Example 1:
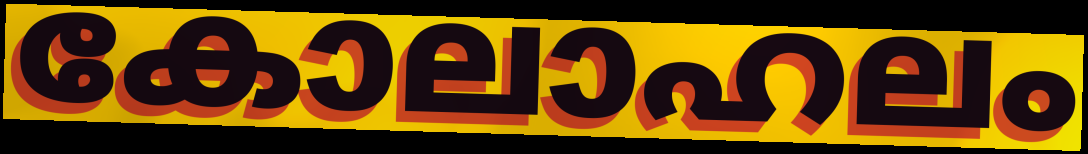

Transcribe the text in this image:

കോലാഹലം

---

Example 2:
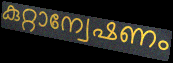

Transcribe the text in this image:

കുറ്റാന്വേഷണം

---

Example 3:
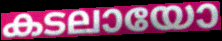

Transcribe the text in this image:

കടലായോ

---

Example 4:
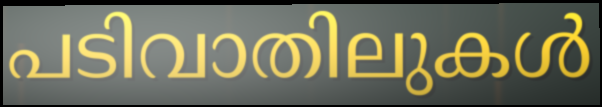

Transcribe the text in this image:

പടിവാതിലുകൾ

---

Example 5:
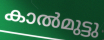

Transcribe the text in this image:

കാൽമുട്ടു